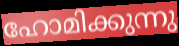
ഹോമിക്കുന്നു